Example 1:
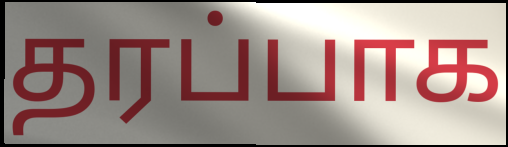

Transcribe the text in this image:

தரப்பாக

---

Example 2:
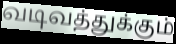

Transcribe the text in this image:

வடிவத்துக்கும்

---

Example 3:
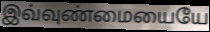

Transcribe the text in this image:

இவ்வுண்மையையே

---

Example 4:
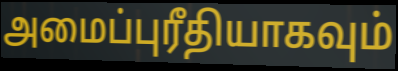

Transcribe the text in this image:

அமைப்புரீதியாகவும்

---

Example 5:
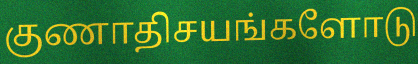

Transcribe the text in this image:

குணாதிசயங்களோடு